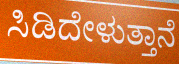
ಸಿಡಿದೇಳುತ್ತಾನೆ